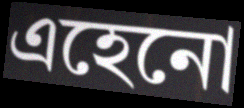
এহেনো